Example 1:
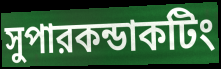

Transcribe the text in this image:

সুপারকন্ডাকটিং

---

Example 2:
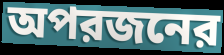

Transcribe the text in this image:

অপরজনের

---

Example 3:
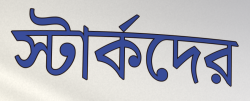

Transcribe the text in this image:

স্টার্কদের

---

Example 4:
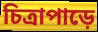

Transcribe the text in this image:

চিত্রাপাড়ে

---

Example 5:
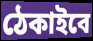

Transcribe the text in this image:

ঠেকাইবে